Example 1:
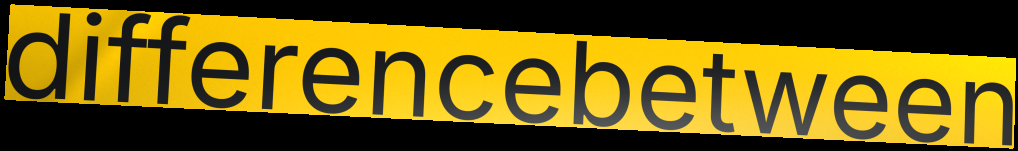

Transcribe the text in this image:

differencebetween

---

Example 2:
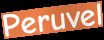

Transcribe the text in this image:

Peruvel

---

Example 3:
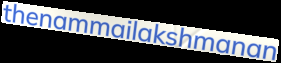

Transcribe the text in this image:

thenammailakshmanan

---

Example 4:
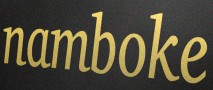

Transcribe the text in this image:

namboke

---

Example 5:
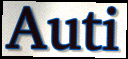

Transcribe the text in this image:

Auti